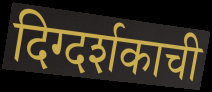
दिग्दर्शकाची